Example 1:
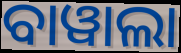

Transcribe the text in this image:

ବାୱାଲା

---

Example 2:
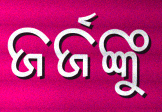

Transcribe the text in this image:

ଜର୍ଜଙ୍କୁ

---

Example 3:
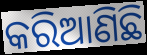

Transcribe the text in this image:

କରିଆଣିଛି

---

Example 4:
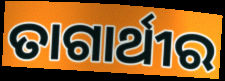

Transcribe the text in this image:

ତାଗାର୍ଥୀର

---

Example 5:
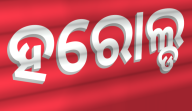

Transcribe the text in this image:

ହରୋଲ୍ଡ